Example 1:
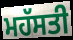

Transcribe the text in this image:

ਮਹੱਸਤੀ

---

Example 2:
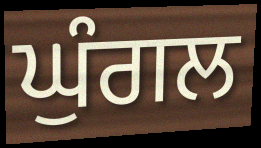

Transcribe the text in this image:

ਘੁੰਗਲ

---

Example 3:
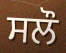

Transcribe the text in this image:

ਸਲੌ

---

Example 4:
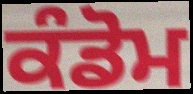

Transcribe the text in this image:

ਕੰਡੋਮ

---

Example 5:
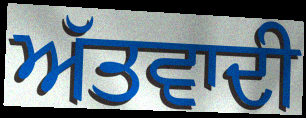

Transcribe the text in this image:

ਅੱਤਵਾਦੀ